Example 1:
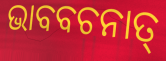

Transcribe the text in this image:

ଭାବବଚନାତ୍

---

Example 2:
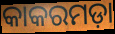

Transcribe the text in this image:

କାକରମଡ଼ା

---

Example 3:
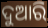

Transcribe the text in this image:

ଦୁଆରି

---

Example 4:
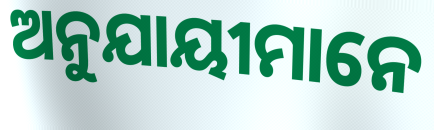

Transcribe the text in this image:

ଅନୁଯାୟୀମାନେ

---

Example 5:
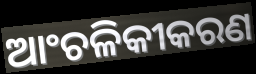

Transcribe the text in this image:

ଆଂଚଳିକୀକରଣ